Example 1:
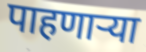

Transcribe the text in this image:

पाहणाऱ्या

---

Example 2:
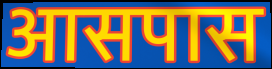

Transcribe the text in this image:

आसपास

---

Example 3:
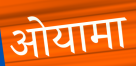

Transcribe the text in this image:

ओयामा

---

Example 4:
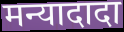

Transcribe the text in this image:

मन्यादादा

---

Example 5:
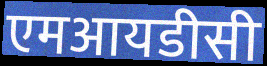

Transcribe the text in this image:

एमआयडीसी